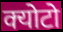
क्‍योटो